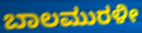
ಬಾಲಮುರಳೀ